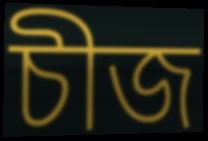
চীজ